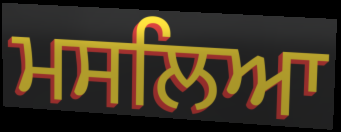
ਮਸਲਿਆ